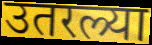
उतरल्या